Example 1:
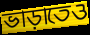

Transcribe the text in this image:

ভাড়াতেও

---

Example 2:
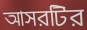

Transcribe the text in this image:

আসরটির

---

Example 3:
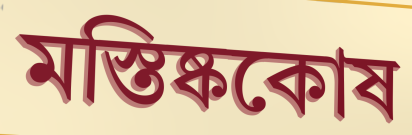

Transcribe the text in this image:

মস্তিষ্ককোষ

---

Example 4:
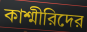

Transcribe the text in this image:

কাশ্মীরিদের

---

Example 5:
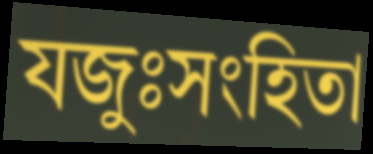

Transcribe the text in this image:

যজুঃসংহিতা